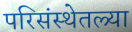
परिसंस्थेतल्या